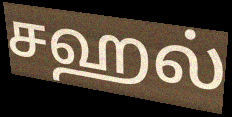
சஹல்